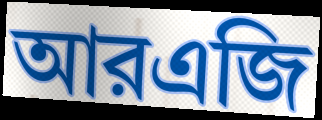
আরএজি